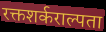
रक्तशर्कराल्पता